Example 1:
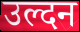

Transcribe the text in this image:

उल्दन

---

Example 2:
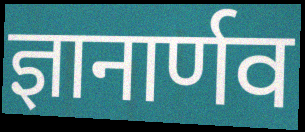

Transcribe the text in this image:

ज्ञानार्णव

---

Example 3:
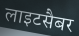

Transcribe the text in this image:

लाइटसैबर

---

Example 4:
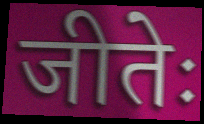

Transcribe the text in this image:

जीतेः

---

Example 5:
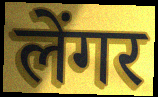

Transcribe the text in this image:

लेंगर